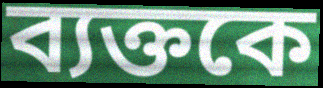
ব্যক্তকে